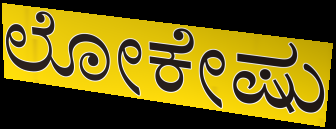
ಲೋಕೇಷು